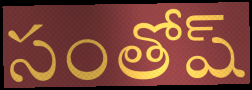
సంతోష్